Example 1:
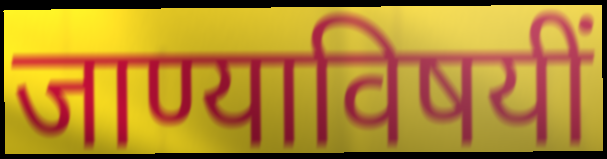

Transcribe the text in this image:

जाण्याविषयीं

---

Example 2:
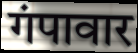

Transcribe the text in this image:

गंपावार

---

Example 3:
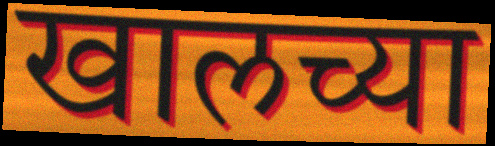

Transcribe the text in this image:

खालच्या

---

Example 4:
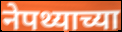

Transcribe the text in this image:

नेपथ्याच्या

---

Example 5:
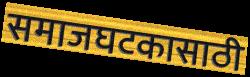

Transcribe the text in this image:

समाजघटकासाठी